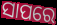
ସାପରେ